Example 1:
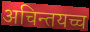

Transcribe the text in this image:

अचिन्तयच्च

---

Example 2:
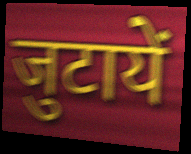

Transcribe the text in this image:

जुटायें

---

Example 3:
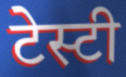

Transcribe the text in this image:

टेस्‍टी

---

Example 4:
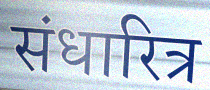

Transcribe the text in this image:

संधारित्र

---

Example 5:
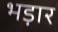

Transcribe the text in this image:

भड़ार